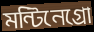
মন্টিনেগ্রো